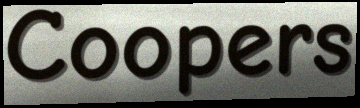
Coopers